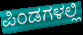
ಪಿಂಡಗಳಲ್ಲಿ